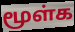
மூள்க